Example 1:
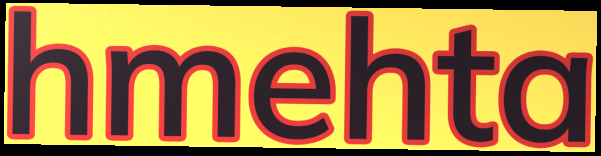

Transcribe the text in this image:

hmehta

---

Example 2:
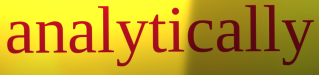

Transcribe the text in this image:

analytically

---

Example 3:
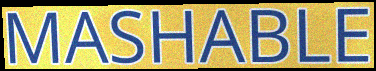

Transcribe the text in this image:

MASHABLE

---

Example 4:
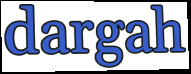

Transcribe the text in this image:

dargah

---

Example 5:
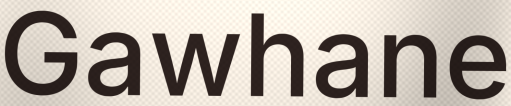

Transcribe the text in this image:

Gawhane